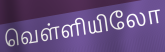
வெள்ளியிலோ